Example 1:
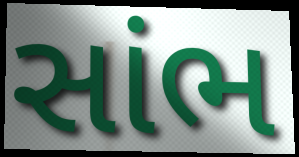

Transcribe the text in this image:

સાંભ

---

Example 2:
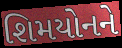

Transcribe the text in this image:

શિમયોનને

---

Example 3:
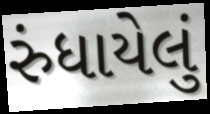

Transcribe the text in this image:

રુંધાયેલું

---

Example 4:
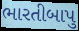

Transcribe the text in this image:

ભારતીબાપુ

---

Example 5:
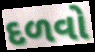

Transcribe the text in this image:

દળવો